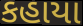
કહાયા